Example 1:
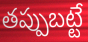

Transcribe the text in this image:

తప్పుబట్టే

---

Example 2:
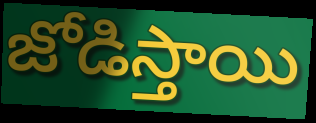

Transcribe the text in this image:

జోడిస్తాయి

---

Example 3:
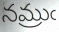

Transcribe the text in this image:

నమ్రుఁ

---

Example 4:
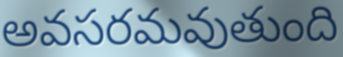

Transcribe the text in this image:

అవసరమవుతుంది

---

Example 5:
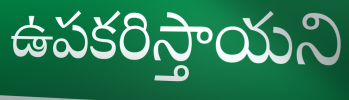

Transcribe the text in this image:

ఉపకరిస్తాయని